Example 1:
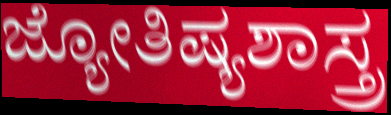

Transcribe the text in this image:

ಜ್ಯೋತಿಷ್ಯಶಾಸ್ತ್ರ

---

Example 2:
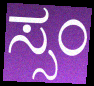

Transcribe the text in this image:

ಸ್ಸಂ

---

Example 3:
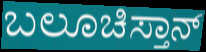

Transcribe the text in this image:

ಬಲೂಚಿಸ್ತಾನ್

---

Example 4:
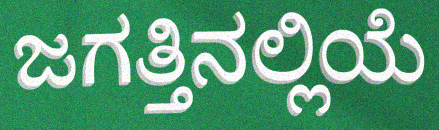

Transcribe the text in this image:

ಜಗತ್ತಿನಲ್ಲಿಯೆ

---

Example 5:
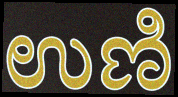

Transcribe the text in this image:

ಉಣಿ